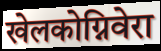
खेलकोग्निवेरा